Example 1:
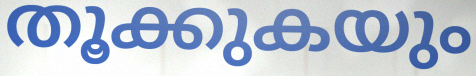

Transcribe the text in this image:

തൂക്കുകയും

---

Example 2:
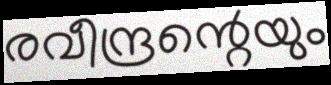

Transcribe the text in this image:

രവീന്ദ്രന്റെയും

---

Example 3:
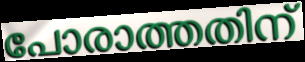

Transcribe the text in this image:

പോരാത്തതിന്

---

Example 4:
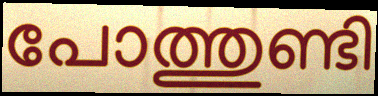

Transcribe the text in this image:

പോത്തുണ്ടി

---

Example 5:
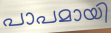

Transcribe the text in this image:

പാപമായി